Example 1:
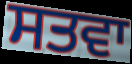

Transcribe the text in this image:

ਸਤਵਾ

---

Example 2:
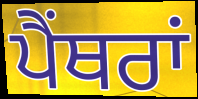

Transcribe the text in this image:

ਪੈਂਥਰਾਂ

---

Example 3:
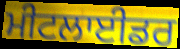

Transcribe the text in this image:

ਮੀਟਲਾਈਡਰ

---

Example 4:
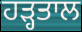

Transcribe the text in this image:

ਹੜ੍ਹਤਾਲ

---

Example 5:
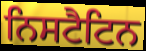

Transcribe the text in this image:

ਨਿਸਟੈਟਿਨ